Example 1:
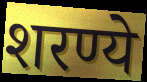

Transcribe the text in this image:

शरण्ये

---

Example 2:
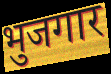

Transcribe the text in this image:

भुजगार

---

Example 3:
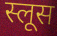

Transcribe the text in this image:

स्लूस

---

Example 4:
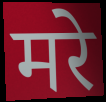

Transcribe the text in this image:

मरे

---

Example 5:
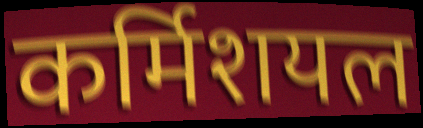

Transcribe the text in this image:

कर्मिशयल